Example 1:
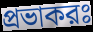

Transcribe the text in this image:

প্রভাকরঃ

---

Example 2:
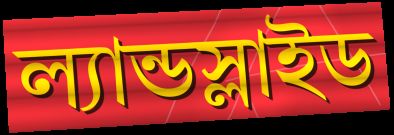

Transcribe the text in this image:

ল্যান্ডস্লাইড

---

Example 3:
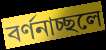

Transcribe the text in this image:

বর্ণনাচ্ছলে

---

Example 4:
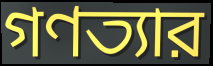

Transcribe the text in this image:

গণত্যার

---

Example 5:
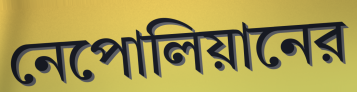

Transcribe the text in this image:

নেপোলিয়ানের